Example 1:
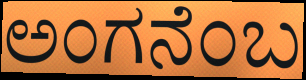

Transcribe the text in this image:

ಅಂಗನೆಂಬ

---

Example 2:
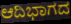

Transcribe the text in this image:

ಆದಿಭಾಗದ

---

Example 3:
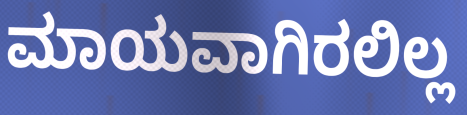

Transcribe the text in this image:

ಮಾಯವಾಗಿರಲಿಲ್ಲ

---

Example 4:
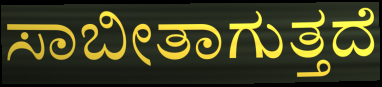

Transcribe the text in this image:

ಸಾಬೀತಾಗುತ್ತದೆ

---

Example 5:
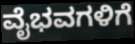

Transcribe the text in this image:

ವೈಭವಗಳಿಗೆ